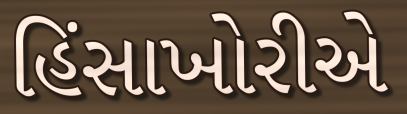
હિંસાખોરીએ